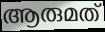
ആരുമത്